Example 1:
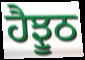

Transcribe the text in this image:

ਹੈਝੂਠ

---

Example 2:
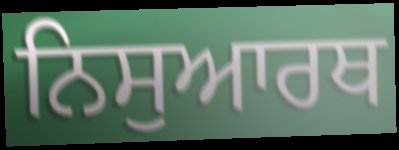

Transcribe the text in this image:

ਨਿਸੁਆਰਥ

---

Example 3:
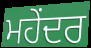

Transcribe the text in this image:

ਮਹੇਂਦਰ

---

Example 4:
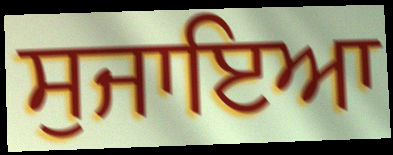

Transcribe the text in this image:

ਸੁਜਾਇਆ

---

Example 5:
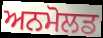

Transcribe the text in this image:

ਅਨਮੋਲਡ